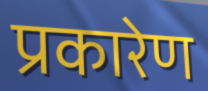
प्रकारेण